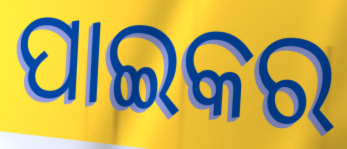
ପାଇକର